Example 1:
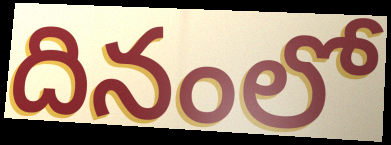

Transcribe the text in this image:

దినంలో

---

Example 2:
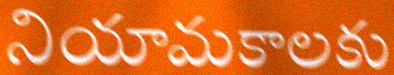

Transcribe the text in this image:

నియామకాలకు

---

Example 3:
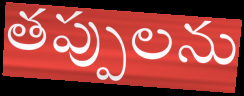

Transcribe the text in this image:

తప్పులను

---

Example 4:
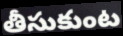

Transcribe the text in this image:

తీసుకుంట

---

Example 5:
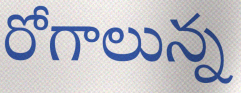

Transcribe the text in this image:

రోగాలున్న